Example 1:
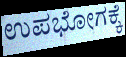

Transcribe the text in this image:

ಉಪಭೋಗಕ್ಕೆ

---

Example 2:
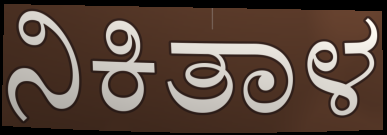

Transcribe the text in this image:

ನಿಕಿತಾಳ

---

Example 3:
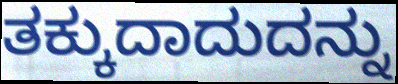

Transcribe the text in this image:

ತಕ್ಕುದಾದುದನ್ನು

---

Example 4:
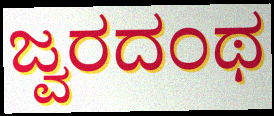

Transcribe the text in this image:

ಜ್ವರದಂಥ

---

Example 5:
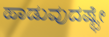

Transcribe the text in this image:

ಹಾಡುವುದಷ್ಟೇ